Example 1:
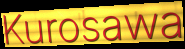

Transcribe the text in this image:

Kurosawa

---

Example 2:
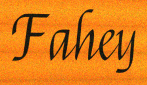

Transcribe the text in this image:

Fahey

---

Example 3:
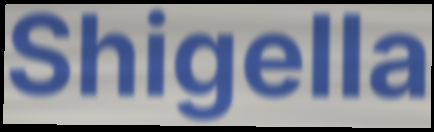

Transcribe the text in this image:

Shigella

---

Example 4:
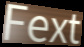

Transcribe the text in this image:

Fext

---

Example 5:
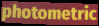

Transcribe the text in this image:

photometric